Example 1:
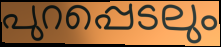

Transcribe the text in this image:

പുറപ്പെടലും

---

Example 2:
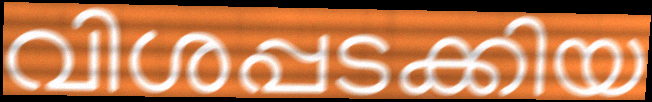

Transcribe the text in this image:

വിശപ്പടക്കിയ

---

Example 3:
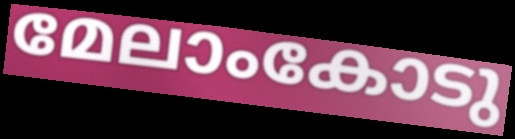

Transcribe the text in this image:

മേലാംകോടു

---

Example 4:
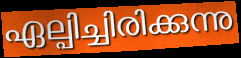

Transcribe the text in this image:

ഏല്പിച്ചിരിക്കുന്നു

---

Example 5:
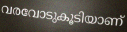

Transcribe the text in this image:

വരവോടുകൂടിയാണ്